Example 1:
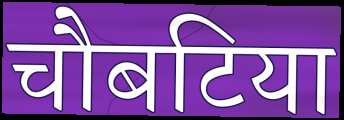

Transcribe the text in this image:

चौबटिया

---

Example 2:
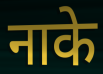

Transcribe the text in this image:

नाके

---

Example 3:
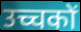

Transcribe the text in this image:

उच्चकों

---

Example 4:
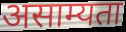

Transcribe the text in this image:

असाम्यता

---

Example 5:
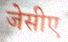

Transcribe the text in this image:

जेसीए